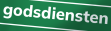
godsdiensten